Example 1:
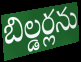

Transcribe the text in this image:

బిల్డర్లను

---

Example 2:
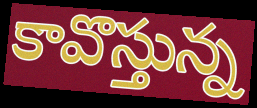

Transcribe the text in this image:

కావొస్తున్న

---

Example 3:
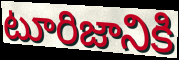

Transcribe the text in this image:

టూరిజానికి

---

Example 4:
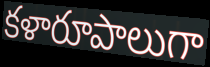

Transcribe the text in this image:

కళారూపాలుగా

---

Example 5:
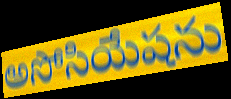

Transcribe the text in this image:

అసోసియేషను